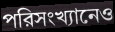
পরিসংখ্যানেও